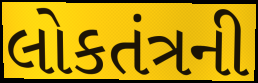
લોકતંત્રની